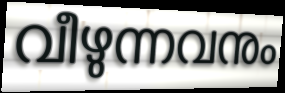
വീഴുന്നവനും